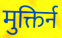
मुक्तिर्न